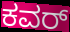
ಕವರ್